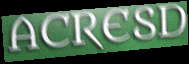
ACRESD